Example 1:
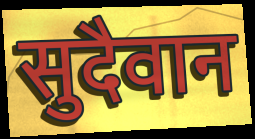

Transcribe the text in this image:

सुदैवान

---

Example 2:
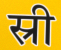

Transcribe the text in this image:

स्री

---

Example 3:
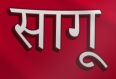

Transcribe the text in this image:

सागू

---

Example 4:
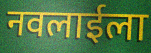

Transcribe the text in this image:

नवलाईला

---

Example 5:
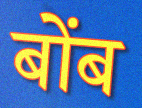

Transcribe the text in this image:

बोंब